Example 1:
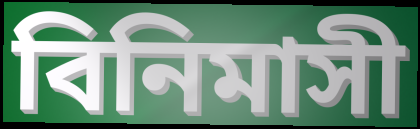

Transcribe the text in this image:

বিনিমাসী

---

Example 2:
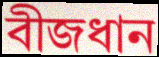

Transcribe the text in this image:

বীজধান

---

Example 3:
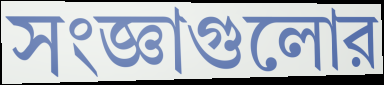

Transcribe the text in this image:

সংজ্ঞাগুলোর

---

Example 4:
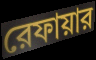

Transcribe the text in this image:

রেফায়ার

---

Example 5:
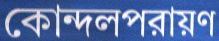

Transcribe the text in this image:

কোন্দলপরায়ণ